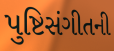
પુષ્ટિસંગીતની